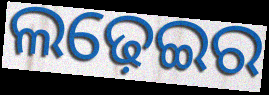
ଲଢ଼େଇର